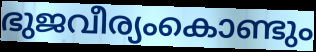
ഭുജവീര്യംകൊണ്ടും